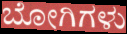
ಬೋಗಿಗಳು